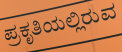
ಪ್ರಕೃತಿಯಲ್ಲಿರುವ